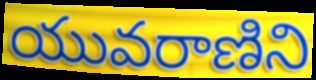
యువరాణిని